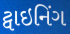
ટ્વાઇનિંગ